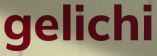
gelichi